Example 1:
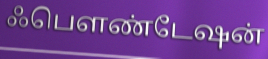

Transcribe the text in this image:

ஃபௌண்டேஷன்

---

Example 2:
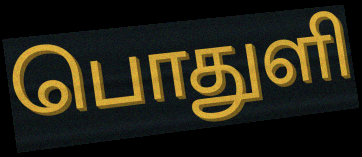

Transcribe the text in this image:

பொதுளி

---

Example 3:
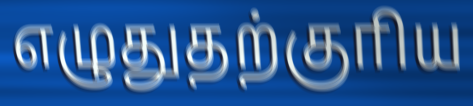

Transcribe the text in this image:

எழுதுதற்குரிய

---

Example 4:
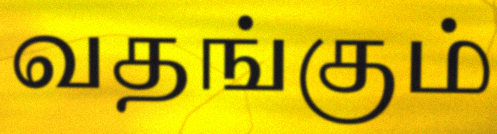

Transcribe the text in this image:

வதங்கும்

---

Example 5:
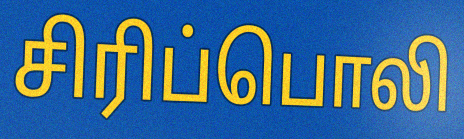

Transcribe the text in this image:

சிரிப்பொலி